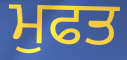
ਮੁਫਤ